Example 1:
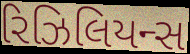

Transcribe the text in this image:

રિઝિલિયન્સ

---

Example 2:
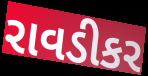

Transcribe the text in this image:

રાવડીકર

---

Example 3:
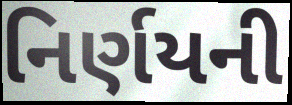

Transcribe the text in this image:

નિર્ણયની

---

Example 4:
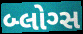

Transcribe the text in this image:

બ્લોગ્સ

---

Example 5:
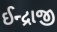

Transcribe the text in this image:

ઈન્દ્રાજી